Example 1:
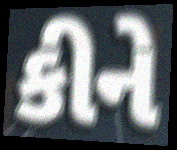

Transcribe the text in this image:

કીને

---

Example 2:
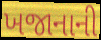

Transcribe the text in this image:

ખજાનાની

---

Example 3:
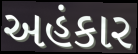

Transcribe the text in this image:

અહંકાર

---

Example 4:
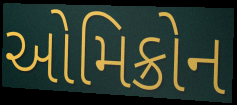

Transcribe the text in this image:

ઓમિક્રોન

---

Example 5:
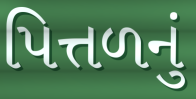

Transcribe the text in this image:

પિત્તળનું